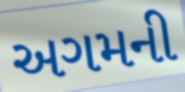
અગમની